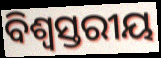
ବିଶ୍ଵସ୍ତରୀୟ